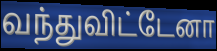
வந்துவிட்டேனா